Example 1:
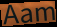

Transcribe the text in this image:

Aam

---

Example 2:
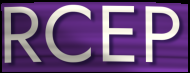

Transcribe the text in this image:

RCEP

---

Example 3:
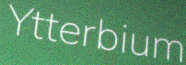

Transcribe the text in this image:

Ytterbium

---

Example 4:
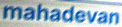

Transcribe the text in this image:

mahadevan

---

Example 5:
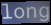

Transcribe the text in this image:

long